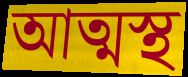
আত্মস্থ